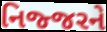
નિજ્જરને